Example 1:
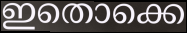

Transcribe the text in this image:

ഇതൊക്കെ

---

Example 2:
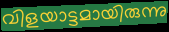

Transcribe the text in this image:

വിളയാട്ടമായിരുന്നു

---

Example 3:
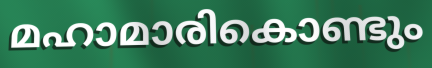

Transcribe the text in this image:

മഹാമാരികൊണ്ടും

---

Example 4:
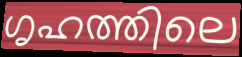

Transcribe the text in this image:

ഗൃഹത്തിലെ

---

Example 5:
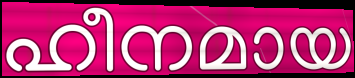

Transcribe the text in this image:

ഹീനമായ